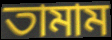
তামাম